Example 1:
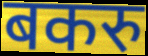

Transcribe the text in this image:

बकरु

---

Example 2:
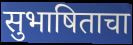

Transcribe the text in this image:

सुभाषिताचा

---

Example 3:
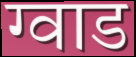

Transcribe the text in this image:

ग्वाड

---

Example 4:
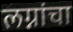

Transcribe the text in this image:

लग्नांचा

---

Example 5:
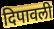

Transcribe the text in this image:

दिपावली